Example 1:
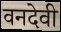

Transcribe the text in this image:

वनदेवी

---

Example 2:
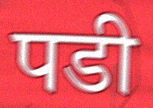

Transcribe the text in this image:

पडी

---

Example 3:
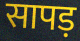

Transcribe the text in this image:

सापड़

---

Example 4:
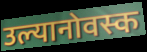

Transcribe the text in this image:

उल्यानोवस्क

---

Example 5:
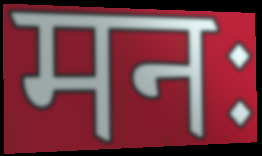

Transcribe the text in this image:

मनः